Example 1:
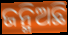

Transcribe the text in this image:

ଜନ୍ମିଅଛି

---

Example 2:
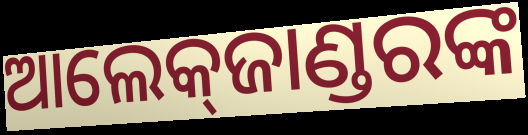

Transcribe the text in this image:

ଆଲେକ୍‍ଜାଣ୍ଡରଙ୍କ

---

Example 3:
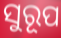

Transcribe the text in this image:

ସୁରୂପ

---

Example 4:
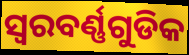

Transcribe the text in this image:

ସ୍ୱରବର୍ଣ୍ଣଗୁଡିକ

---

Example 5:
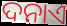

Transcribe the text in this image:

ଦନାଏ